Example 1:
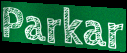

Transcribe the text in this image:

Parkar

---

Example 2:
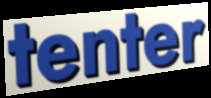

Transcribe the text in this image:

tenter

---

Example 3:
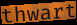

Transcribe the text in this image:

thwart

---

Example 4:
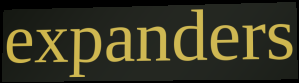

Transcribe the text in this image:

expanders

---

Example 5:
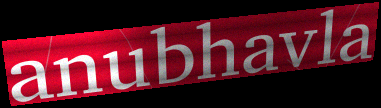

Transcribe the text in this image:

anubhavla